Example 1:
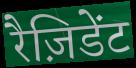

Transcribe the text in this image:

रैज़िडेंट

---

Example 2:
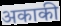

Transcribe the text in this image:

अकाकी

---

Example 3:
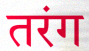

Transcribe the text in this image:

तरंग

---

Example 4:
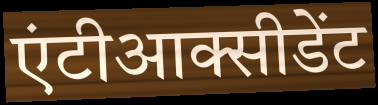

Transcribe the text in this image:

एंटीआक्सीडेंट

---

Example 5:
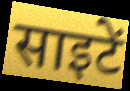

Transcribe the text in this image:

साइटें